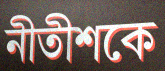
নীতীশকে